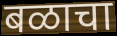
बळाचा